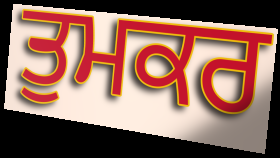
ਤੁਮਕਰ